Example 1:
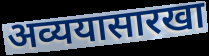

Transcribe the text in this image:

अव्ययासारखा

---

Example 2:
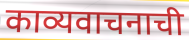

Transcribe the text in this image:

काव्यवाचनाची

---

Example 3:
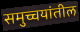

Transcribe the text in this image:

समुच्चयांतील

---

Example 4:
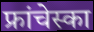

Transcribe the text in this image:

फ्रांचेस्का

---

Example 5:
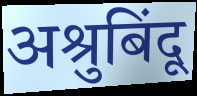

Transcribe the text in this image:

अश्रुबिंदू